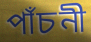
পাঁচনী